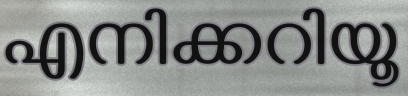
എനിക്കറിയൂ